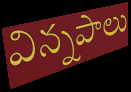
విన్నపాలు